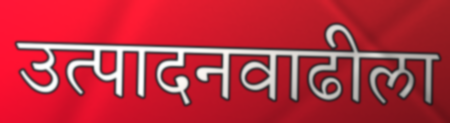
उत्पादनवाढीला